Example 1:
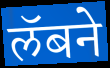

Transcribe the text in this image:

लॅबने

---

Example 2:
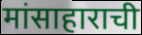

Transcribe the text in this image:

मांसाहाराची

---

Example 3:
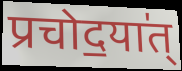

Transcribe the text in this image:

प्रचो॒दया॑त्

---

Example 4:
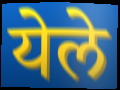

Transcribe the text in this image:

येले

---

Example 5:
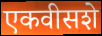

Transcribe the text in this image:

एकवीसशे